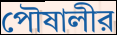
পৌষালীর